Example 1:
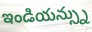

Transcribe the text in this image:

ఇండియన్స్ను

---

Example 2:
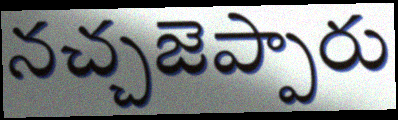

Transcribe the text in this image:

నచ్చజెప్పారు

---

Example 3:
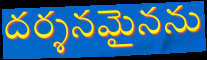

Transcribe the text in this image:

దర్శనమైనను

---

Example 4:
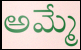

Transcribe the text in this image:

అమ్మే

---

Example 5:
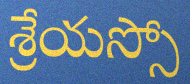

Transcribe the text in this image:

శ్రేయస్సో